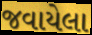
જવાયેલા